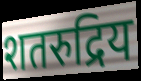
शतरुद्रिय